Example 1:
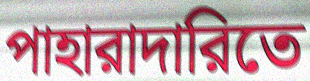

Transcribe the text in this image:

পাহারাদারিতে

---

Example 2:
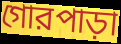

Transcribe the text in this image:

গোরপাড়া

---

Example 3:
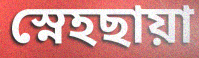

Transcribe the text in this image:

স্নেহছায়া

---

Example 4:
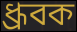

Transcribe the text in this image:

ধ্রূবক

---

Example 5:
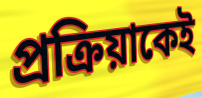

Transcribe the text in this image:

প্রক্রিয়াকেই